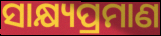
ସାକ୍ଷ୍ୟପ୍ରମାଣ